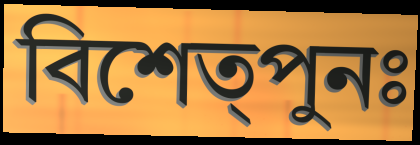
বিশেত্পুনঃ